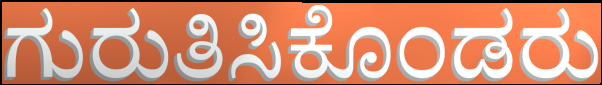
ಗುರುತಿಸಿಕೊಂಡರು